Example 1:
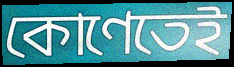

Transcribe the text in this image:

কোণেতেই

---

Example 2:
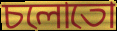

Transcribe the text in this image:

চলোতো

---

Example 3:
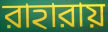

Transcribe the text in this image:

রাহারায়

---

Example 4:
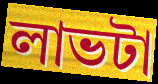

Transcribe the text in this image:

লাভটা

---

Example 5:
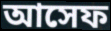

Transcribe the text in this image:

আসেফ